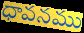
ధావనము